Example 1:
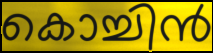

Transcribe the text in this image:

കൊച്ചിൻ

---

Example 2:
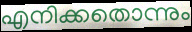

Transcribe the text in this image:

എനിക്കതൊന്നും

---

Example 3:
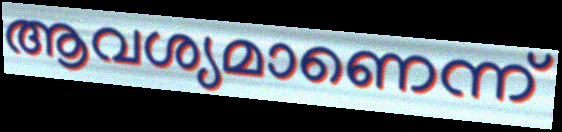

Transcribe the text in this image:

ആവശ്യമാണെന്ന്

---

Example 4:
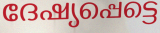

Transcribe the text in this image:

ദേഷ്യപ്പെട്ടെ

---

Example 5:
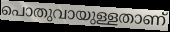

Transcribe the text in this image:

പൊതുവായുള്ളതാണ്